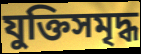
যুক্তিসমৃদ্ধ